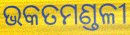
ଭକତମଣ୍ଡଳୀ